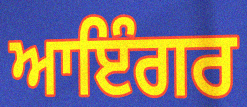
ਆਇੰਗਰ